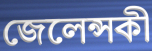
জেলেন্সকী